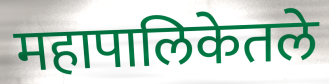
महापालिकेतले